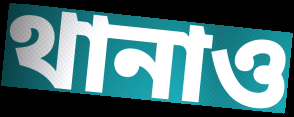
থানাও